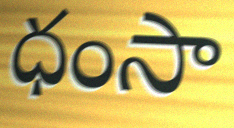
ధంసా